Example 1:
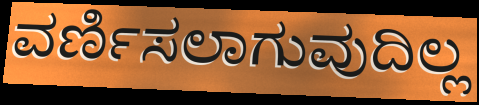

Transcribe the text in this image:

ವರ್ಣಿಸಲಾಗುವುದಿಲ್ಲ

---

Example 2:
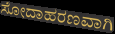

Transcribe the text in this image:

ಸೋದಾಹರಣವಾಗಿ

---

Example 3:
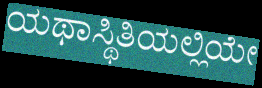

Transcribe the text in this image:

ಯಥಾಸ್ಥಿತಿಯಲ್ಲಿಯೇ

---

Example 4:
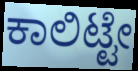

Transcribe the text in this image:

ಕಾಲಿಟ್ಟೇ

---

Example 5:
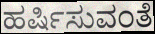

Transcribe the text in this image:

ಹರ್ಷಿಸುವಂತೆ